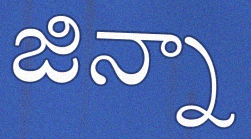
జిన్నా